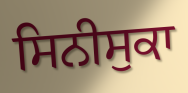
ਸਿਨੀਸੁਕਾ